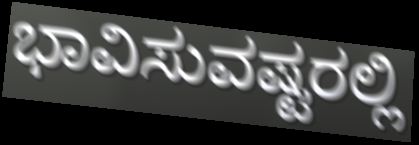
ಭಾವಿಸುವಷ್ಟರಲ್ಲಿ